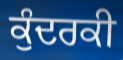
ਕੁੰਦਰਕੀ